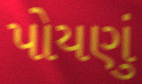
પોયણું